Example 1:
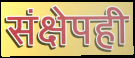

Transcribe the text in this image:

संक्षेपही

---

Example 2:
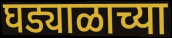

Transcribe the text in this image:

घड्याळाच्या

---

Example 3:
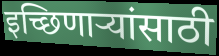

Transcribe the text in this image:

इच्छिणाऱ्यांसाठी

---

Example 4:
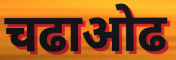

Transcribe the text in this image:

चढाओढ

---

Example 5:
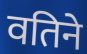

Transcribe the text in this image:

वतिने